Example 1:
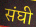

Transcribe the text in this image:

संघी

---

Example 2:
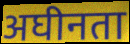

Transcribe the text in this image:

अघीनता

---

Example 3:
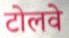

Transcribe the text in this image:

टोलवे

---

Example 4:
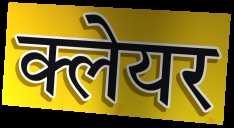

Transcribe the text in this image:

क्‍लेयर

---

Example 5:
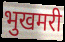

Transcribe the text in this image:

भुखमरी